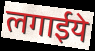
लगाईये